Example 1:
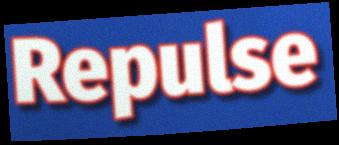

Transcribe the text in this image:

Repulse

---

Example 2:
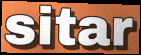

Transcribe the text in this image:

sitar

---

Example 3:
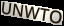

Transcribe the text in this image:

UNWTO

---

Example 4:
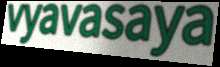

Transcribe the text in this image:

vyavasaya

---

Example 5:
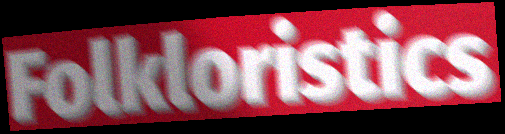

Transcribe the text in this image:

Folkloristics